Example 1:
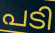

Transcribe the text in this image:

പടി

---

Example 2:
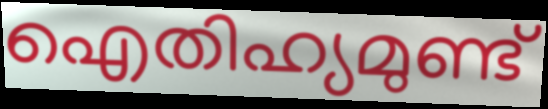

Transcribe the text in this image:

ഐതിഹ്യമുണ്ട്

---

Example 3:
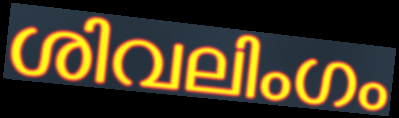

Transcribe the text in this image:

ശിവലിംഗം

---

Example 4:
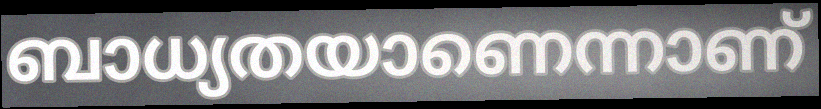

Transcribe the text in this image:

ബാധ്യതയാണെന്നാണ്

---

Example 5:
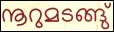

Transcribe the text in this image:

നൂറുമടങ്ങു്